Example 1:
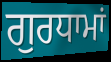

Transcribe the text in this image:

ਗੁਰਧਾਮਾਂ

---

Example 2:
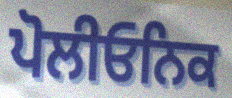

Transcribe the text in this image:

ਪੋਲੀਓਨਿਕ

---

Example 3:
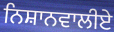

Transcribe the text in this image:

ਨਿਸ਼ਾਨਵਾਲੀਏ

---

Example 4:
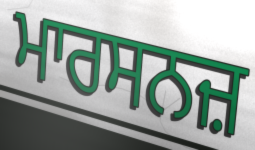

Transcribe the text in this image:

ਮਾਰਸਨਜ਼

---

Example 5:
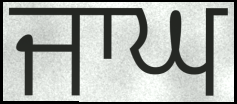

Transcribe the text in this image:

ਜਾਘ